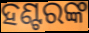
ହଣ୍ଟରଙ୍କ